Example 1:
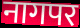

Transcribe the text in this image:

नागपर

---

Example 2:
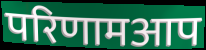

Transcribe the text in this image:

परिणामआप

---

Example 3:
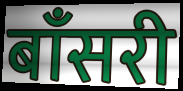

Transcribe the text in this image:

बाँसरी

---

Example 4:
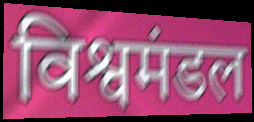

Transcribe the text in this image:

विश्वमंडल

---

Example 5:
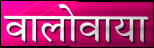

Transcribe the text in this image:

वालोवाया